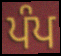
ਪੰਪ